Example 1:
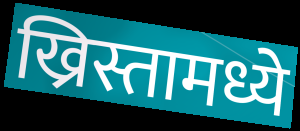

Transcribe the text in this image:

ख्रिस्तामध्ये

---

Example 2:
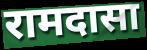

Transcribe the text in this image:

रामदासा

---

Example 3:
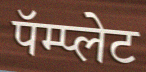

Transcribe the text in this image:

पॅम्प्लेट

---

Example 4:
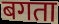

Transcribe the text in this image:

बगता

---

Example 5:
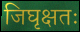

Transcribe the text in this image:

जिघृक्षतः